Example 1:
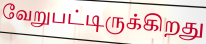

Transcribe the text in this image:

வேறுபட்டிருக்கிறது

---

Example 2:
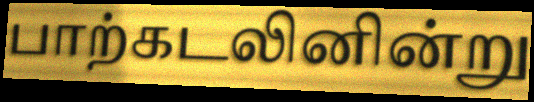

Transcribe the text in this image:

பாற்கடலினின்று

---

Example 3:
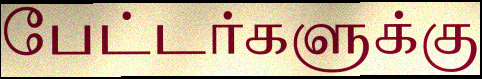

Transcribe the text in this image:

பேட்டர்களுக்கு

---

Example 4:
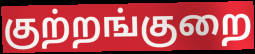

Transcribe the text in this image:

குற்றங்குறை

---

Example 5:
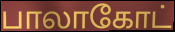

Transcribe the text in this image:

பாலாகோட்